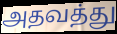
அதவத்து